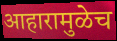
आहारामुळेच